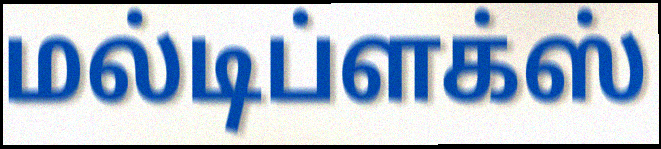
மல்டிப்ளக்ஸ்